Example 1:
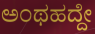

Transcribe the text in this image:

ಅಂಥಹದ್ದೇ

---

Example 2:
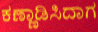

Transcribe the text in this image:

ಕಣ್ಣಾಡಿಸಿದಾಗ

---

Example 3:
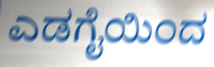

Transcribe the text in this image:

ಎಡಗೈಯಿಂದ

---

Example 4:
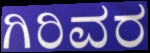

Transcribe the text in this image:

ಗಿರಿವರ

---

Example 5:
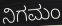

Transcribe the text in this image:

ನಿಗಮಂ